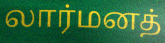
லார்மனத்